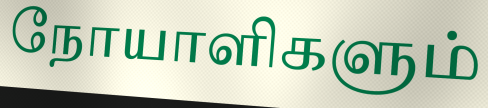
நோயாளிகளும்